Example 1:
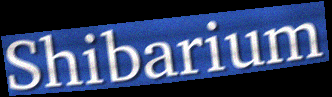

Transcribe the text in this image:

Shibarium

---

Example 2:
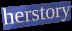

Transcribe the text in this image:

herstory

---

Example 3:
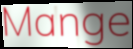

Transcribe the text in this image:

Mange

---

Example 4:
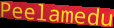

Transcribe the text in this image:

Peelamedu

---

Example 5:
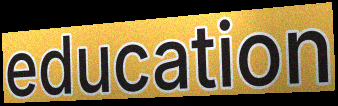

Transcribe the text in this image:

education